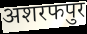
अशरफपुर